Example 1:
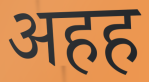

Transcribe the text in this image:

अहह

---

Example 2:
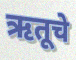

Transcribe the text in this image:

ऋतूचे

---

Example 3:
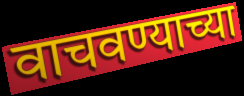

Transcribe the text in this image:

वाचवण्याच्या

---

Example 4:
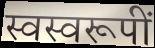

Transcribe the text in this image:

स्वस्वरूपीं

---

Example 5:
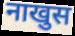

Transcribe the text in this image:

नाखुस